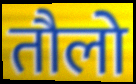
तौलो